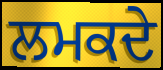
ਲਮਕਦੇ